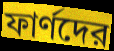
ফার্ণদের